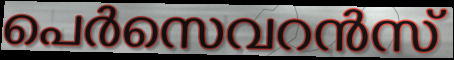
പെർസെവറൻസ്